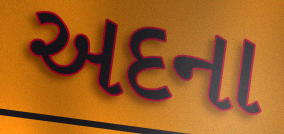
અદના